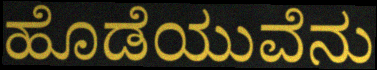
ಹೊಡೆಯುವೆನು